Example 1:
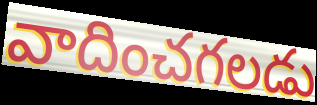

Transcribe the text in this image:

వాదించగలడు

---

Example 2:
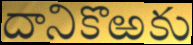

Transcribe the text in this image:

దానికొఱకు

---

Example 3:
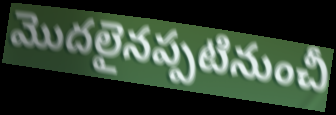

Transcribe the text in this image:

మొదలైనప్పటినుంచీ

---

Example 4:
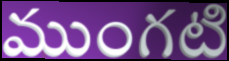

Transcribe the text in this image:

ముంగటి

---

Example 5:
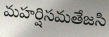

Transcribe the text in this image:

మహర్షిసమతేజసి